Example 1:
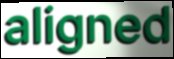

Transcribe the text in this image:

aligned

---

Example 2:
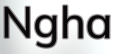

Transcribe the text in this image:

Ngha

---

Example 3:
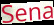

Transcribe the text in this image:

Sena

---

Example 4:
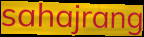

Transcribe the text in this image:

sahajrang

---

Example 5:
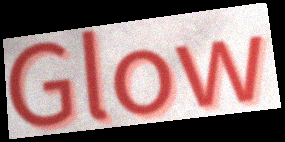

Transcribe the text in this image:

Glow